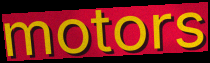
motors